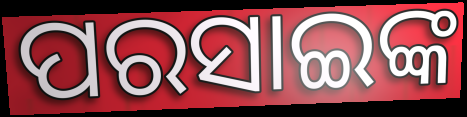
ପରସାଇଙ୍କ